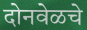
दोनवेळचे